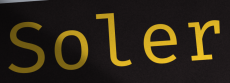
Soler